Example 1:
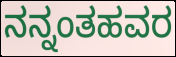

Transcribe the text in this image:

ನನ್ನಂತಹವರ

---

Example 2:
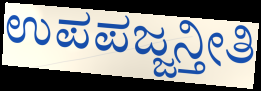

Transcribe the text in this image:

ಉಪಪಜ್ಜನ್ತೀತಿ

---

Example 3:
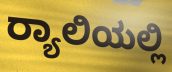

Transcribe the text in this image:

ರ‍್ಯಾಲಿಯಲ್ಲಿ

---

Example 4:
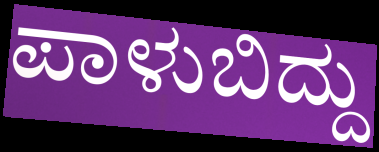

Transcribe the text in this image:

ಪಾಳುಬಿದ್ದು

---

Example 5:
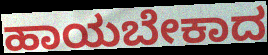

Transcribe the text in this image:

ಹಾಯಬೇಕಾದ